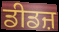
ਡੀਡਜ਼